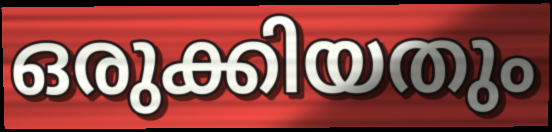
ഒരുക്കിയതും